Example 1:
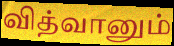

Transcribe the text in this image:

வித்வானும்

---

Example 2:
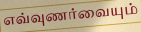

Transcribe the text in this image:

எவ்வுணர்வையும்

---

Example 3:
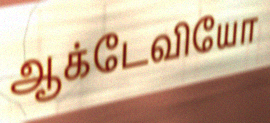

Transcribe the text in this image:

ஆக்டேவியோ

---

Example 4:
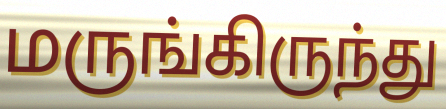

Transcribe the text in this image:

மருங்கிருந்து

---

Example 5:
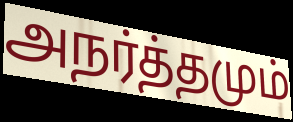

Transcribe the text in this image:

அநர்த்தமும்